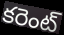
కరెంట్